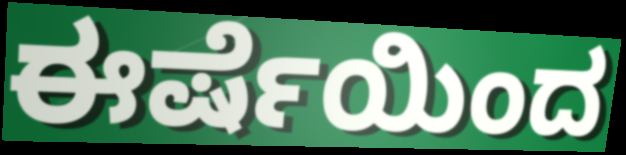
ಈರ್ಷೆಯಿಂದ